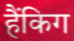
हैंकिग